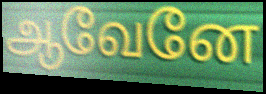
ஆவேனே